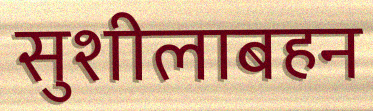
सुशीलाबहन